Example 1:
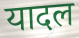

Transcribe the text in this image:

यादल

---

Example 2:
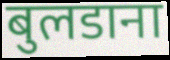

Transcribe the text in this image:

बुलडाना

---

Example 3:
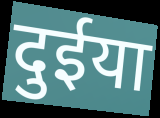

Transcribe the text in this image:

दुईया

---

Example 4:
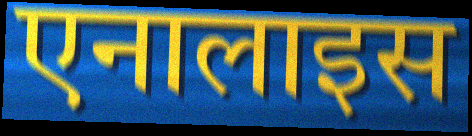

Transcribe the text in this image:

एनालाइस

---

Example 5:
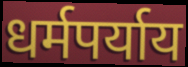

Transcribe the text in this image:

धर्मपर्याय